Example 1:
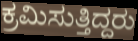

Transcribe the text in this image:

ಕ್ರಮಿಸುತ್ತಿದ್ದರು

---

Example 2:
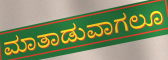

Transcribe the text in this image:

ಮಾತಾಡುವಾಗಲೂ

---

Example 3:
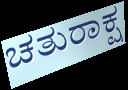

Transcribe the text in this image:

ಚತುರಾಕ್ಷ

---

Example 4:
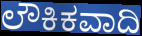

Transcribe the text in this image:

ಲೌಕಿಕವಾದಿ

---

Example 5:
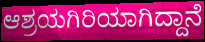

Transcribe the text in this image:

ಆಶ್ರಯಗಿರಿಯಾಗಿದ್ದಾನೆ